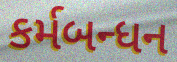
કર્મબન્ધન